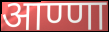
आण्णा